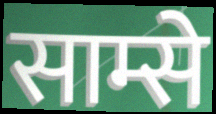
साम्से